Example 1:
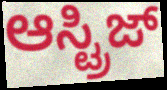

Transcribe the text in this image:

ಆಸ್ಟ್ರಿಜ್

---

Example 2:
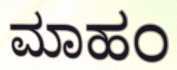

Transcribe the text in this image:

ಮಾಹಂ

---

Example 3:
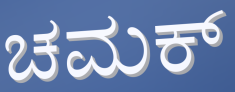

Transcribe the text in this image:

ಚಮಕ್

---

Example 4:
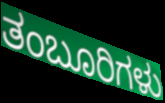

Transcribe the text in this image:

ತಂಬೂರಿಗಳು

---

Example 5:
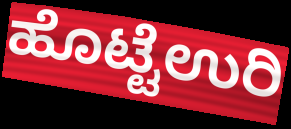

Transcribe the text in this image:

ಹೊಟ್ಟೆಉರಿ